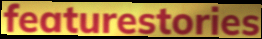
featurestories